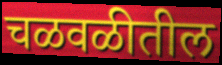
चळवळीतील